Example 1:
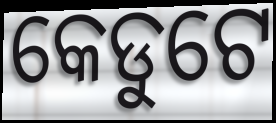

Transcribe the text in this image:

କେଡୁଟେ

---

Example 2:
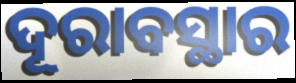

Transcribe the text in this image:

ଦୂରାବସ୍ଥାର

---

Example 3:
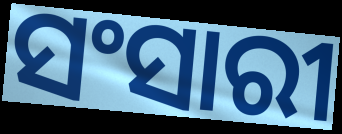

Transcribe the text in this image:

ସଂସାରୀ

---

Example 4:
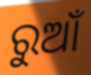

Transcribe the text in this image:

ରୁଆଁ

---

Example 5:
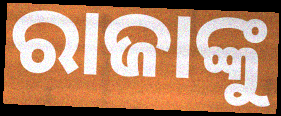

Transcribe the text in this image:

ରାଜାଙ୍କୁ